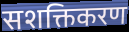
सशक्तिकरण